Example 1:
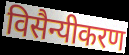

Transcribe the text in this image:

विसैन्यीकरण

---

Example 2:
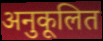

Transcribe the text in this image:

अनुकूलित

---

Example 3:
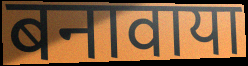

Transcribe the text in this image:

बनावाया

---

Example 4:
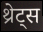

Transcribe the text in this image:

थ्रेट्स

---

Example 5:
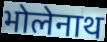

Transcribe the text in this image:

भोलेनाथ